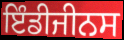
ਇੰਡੀਜੀਨਸ